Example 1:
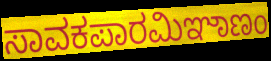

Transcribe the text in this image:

ಸಾವಕಪಾರಮಿಞಾಣಂ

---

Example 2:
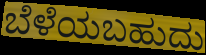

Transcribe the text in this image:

ಬೆಳೆಯಬಹುದು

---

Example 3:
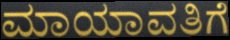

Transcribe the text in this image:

ಮಾಯಾವತಿಗೆ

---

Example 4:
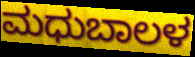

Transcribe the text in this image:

ಮಧುಬಾಲಳ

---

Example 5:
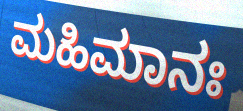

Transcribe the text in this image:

ಮಹಿಮಾನಃ